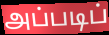
அப்படிப்